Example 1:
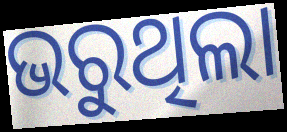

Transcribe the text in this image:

ଭରୁଥିଲା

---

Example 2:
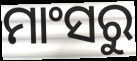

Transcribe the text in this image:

ମାଂସରୁ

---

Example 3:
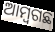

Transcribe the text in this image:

ଆମ୍ବଗଛ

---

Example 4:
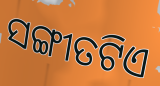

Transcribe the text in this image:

ସଙ୍ଗୀତଟିଏ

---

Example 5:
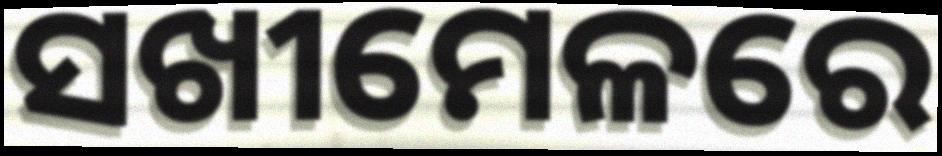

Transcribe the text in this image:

ସଖୀମେଳରେ